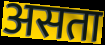
असता